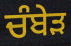
ਚੰਬੇੜ